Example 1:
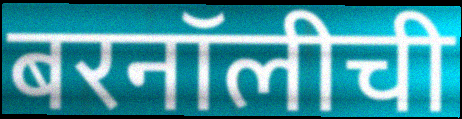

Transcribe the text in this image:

बरनॉलीची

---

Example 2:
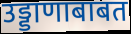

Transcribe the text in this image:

उड्डाणाबाबत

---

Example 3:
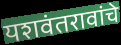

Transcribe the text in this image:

यशवंतरावांचे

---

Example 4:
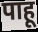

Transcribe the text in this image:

पाहू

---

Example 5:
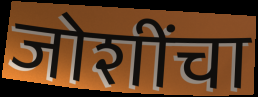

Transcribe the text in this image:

जोशींचा